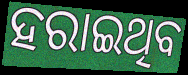
ହରାଇଥିବ